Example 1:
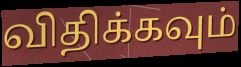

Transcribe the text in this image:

விதிக்கவும்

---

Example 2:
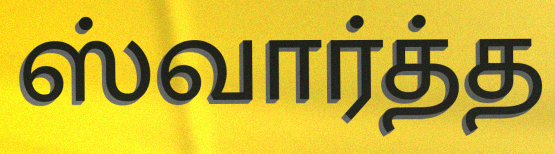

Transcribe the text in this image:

ஸ்வார்த்த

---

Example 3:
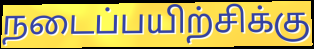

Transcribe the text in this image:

நடைப்பயிற்சிக்கு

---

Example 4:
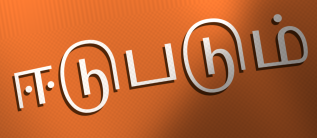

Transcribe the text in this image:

ஈடுபடும்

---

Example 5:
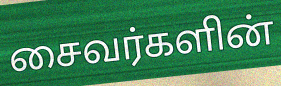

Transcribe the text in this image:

சைவர்களின்